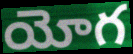
యోగ